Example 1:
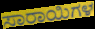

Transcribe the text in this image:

ಸಾರಾಯಿಗಳ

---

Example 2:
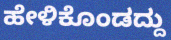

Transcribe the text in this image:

ಹೇಳಿಕೊಂಡದ್ದು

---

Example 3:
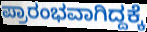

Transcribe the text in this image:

ಪ್ರಾರಂಭವಾಗಿದ್ದಕ್ಕೆ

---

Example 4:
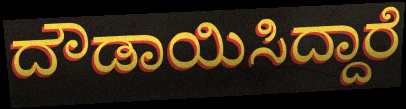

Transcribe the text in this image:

ದೌಡಾಯಿಸಿದ್ದಾರೆ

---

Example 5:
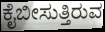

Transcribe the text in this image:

ಕೈಬೀಸುತ್ತಿರುವ